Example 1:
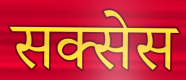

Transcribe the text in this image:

सक्सेस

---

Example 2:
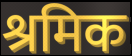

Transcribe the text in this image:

श्रमिक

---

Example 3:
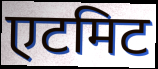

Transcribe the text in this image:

एटमिट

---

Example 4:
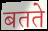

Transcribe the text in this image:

बतते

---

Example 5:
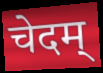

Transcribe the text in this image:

चेदम्